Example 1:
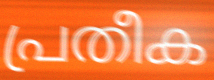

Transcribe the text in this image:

പ്രതീക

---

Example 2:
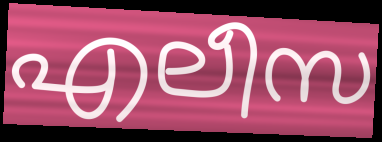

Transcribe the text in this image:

എലീസ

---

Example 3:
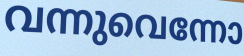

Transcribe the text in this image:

വന്നുവെന്നോ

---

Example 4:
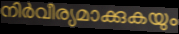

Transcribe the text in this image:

നിർവീര്യമാക്കുകയും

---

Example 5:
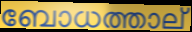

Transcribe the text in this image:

ബോധത്താല്